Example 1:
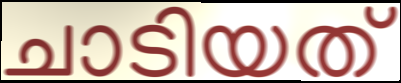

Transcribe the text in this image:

ചാടിയത്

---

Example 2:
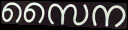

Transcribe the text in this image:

സൈന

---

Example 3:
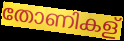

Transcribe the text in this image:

തോണികള്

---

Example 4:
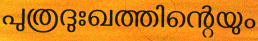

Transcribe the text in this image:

പുത്രദുഃഖത്തിന്റെയും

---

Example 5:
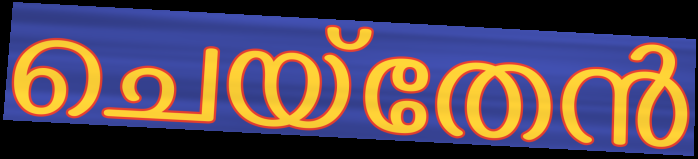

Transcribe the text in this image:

ചെയ്‌തേൻ